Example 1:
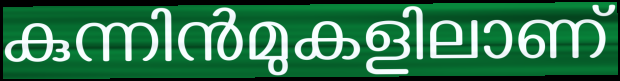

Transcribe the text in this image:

കുന്നിൻമുകളിലാണ്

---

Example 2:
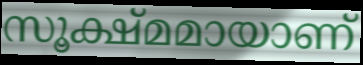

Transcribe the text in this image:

സൂക്ഷ്മമായാണ്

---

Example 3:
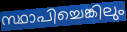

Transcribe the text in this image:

സ്ഥാപിച്ചെങ്കിലും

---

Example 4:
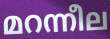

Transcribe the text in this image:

മറന്നീല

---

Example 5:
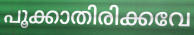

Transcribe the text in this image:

പൂക്കാതിരിക്കവേ